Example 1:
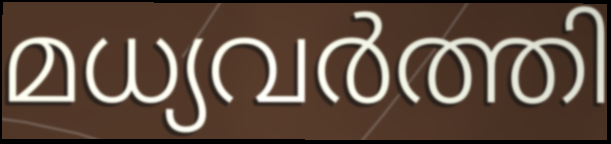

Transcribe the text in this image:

മധ്യവർത്തി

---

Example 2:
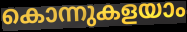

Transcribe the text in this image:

കൊന്നുകളയാം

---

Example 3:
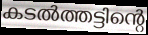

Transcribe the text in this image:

കടൽത്തട്ടിന്റെ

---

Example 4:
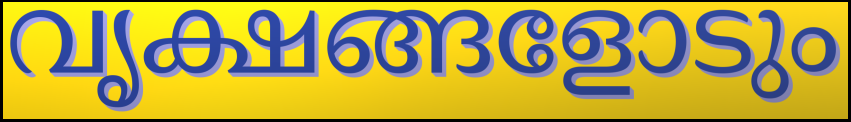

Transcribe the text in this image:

വൃക്ഷങ്ങളോടും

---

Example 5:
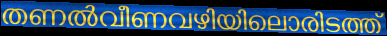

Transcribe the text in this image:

തണൽവീണവഴിയിലൊരിടത്ത്